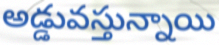
అడ్డువస్తున్నాయి